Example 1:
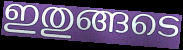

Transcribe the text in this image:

ഇതുങ്ങടെ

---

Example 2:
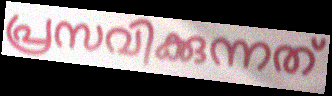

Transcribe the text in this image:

പ്രസവിക്കുന്നത്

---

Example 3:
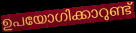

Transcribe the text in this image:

ഉപയോഗിക്കാറുണ്ട്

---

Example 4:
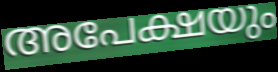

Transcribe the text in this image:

അപേക്ഷയും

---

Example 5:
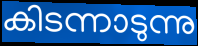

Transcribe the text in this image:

കിടന്നാടുന്നു